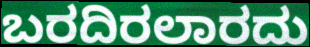
ಬರದಿರಲಾರದು